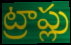
ట్రాప్లు